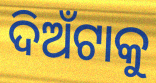
ଦିଅଁଟାକୁ